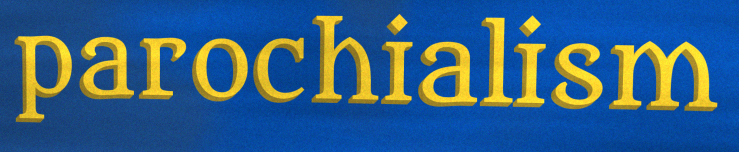
parochialism